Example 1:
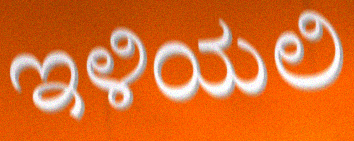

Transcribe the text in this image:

ಇಳಿಯಲಿ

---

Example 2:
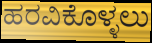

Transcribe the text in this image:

ಹರವಿಕೊಳ್ಳಲು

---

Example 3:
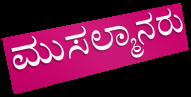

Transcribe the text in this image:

ಮುಸಲ್ಮಾನರು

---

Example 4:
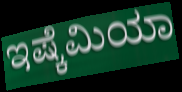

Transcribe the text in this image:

ಇಷ್ಕೆಮಿಯಾ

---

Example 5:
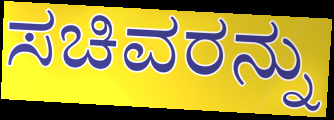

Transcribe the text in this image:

ಸಚಿವರನ್ನು